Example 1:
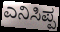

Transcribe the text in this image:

ಎನಿಸಿಪ್ಪ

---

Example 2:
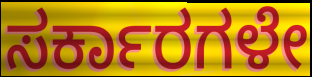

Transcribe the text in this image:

ಸರ್ಕಾರಗಳೇ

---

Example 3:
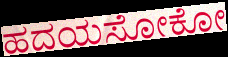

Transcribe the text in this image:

ಹದಯಸೋಕೋ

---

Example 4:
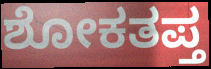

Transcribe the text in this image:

ಶೋಕತಪ್ತ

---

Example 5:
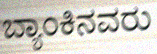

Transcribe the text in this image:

ಬ್ಯಾಂಕಿನವರು